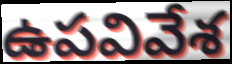
ఉపవివేశ